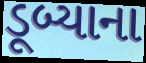
ડૂબ્યાના